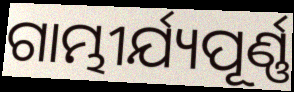
ଗାମ୍ଭୀର୍ଯ୍ୟପୂର୍ଣ୍ଣ